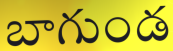
బాగుండ